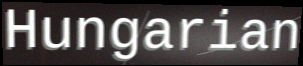
Hungarian